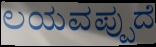
ಲಯವಪ್ಪುದೆ